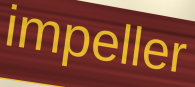
impeller